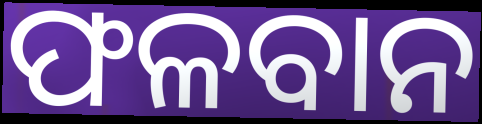
ଫଳବାନ